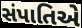
સંપાતિએ